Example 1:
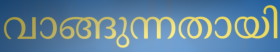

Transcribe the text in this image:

വാങ്ങുന്നതായി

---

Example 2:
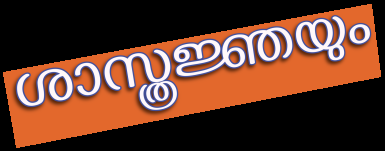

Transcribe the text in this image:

ശാസ്ത്രജ്ഞയും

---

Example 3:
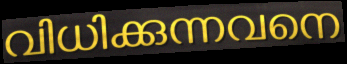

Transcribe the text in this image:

വിധിക്കുന്നവനെ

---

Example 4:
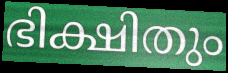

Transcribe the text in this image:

ഭിക്ഷിതും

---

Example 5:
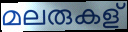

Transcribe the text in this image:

മലരുകള്